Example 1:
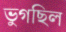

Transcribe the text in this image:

ভুগছিল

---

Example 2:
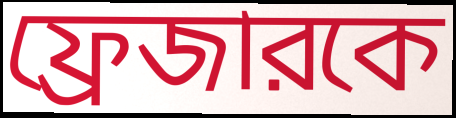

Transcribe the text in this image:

ফ্রেজারকে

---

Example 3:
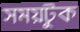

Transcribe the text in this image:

সময়টুক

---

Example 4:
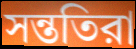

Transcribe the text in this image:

সন্ততিরা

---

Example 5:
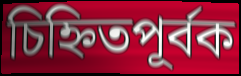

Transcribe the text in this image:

চিহ্নিতপূর্বক